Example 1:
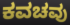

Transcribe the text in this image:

ಕವಚವು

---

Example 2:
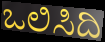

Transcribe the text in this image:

ಒಲಿಸಿದಿ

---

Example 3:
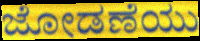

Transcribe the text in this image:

ಜೋಡಣೆಯು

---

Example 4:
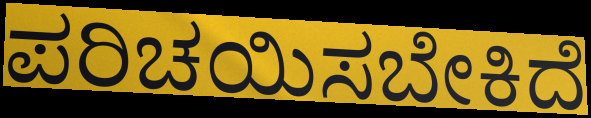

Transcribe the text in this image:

ಪರಿಚಯಿಸಬೇಕಿದೆ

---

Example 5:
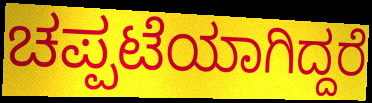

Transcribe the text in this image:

ಚಪ್ಪಟೆಯಾಗಿದ್ದರೆ